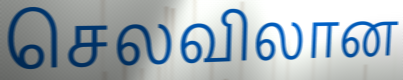
செலவிலான